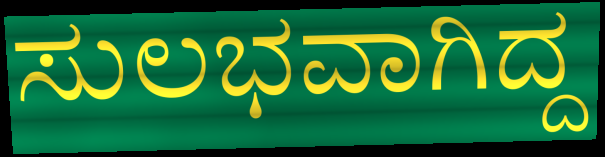
ಸುಲಭವಾಗಿದ್ದ